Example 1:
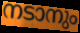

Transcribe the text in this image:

നടാനും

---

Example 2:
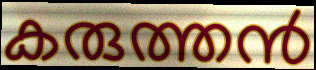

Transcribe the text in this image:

കരുത്തൻ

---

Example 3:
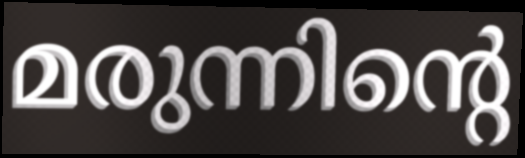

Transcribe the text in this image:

മരുന്നിന്റെ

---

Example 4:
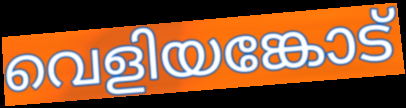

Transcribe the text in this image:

വെളിയങ്കോട്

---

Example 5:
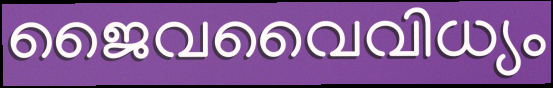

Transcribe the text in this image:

ജൈവവൈവിധ്യം